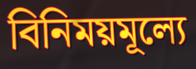
বিনিময়মূল্যে